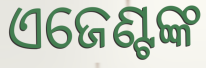
ଏଜେଣ୍ଟଙ୍କ